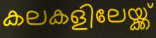
കലകളിലേയ്ക്ക്